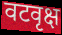
वटवृक्ष